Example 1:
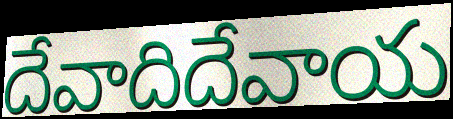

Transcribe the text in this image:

దేవాదిదేవాయ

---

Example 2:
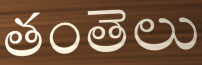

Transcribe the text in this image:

తంతెలు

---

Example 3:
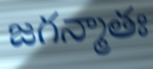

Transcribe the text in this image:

జగన్మాతః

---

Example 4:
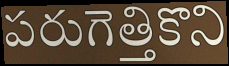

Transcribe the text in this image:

పరుగెత్తికొని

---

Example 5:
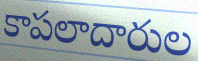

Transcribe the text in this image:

కాపలాదారుల